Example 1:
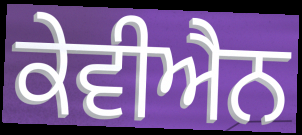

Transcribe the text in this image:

ਕੇਵੀਐਨ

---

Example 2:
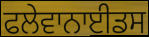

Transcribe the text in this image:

ਫਲੇਵਾਨਾਈਡਸ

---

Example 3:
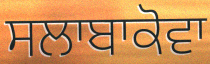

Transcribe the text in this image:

ਸਲਾਬਾਕੋਵਾ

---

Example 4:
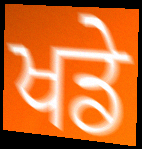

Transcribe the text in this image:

ਖਡੇ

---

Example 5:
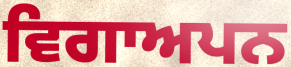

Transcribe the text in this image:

ਵਿਗਾਅਪਨ